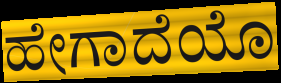
ಹೇಗಾದೆಯೊ